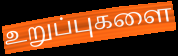
உறுப்புகளை